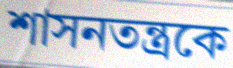
শাসনতন্ত্রকে